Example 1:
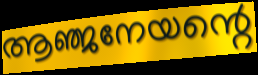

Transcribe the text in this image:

ആഞ്ജനേയന്റെ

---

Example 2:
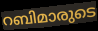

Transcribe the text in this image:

റബിമാരുടെ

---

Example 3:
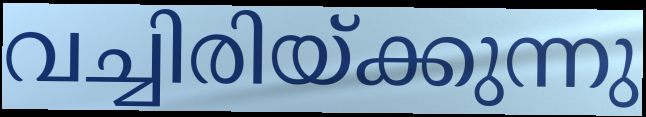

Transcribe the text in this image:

വച്ചിരിയ്ക്കുന്നു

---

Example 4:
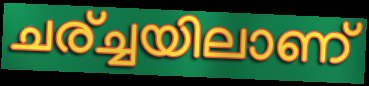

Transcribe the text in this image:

ചര്ച്ചയിലാണ്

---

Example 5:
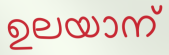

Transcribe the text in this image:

ഉലയാന്